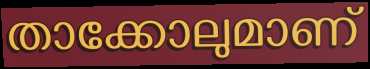
താക്കോലുമാണ്